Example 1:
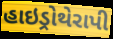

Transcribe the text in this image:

હાઇડ્રોથેરાપી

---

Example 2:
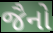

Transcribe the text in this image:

જૈનો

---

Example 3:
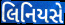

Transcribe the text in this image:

લિનિયસે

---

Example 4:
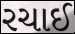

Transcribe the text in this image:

રચાઈ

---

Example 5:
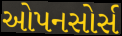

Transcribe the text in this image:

ઓપનસોર્સ